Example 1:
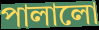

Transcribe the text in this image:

পালালো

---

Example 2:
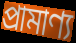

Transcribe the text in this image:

প্রামাণ্য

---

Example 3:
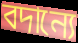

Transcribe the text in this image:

বদান্যে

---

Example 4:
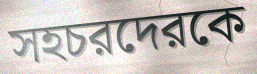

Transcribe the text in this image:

সহচরদেরকে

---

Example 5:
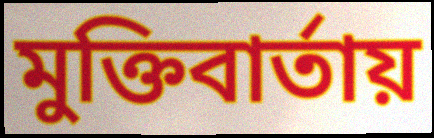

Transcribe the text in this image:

মুক্তিবার্তায়